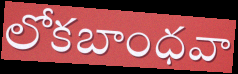
లోకబాంధవా